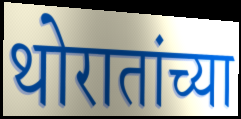
थोरातांच्या